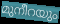
മുനീറയും